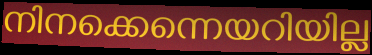
നിനക്കെന്നെയറിയില്ല